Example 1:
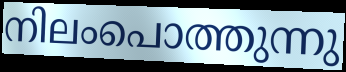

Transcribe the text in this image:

നിലംപൊത്തുന്നു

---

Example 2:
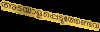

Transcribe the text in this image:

അടയാളപ്പെടുത്തേണ്ടവ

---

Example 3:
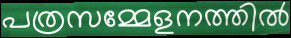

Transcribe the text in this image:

പത്രസമ്മേളനത്തിൽ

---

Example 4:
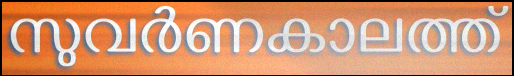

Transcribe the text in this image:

സുവർണകാലത്ത്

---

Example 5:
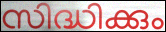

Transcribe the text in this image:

സിദ്ധിക്കും